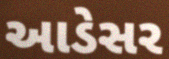
આડેસર